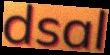
dsal